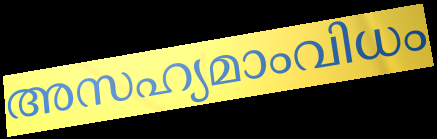
അസഹ്യമാംവിധം